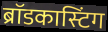
ब्रॉडकास्टिंग